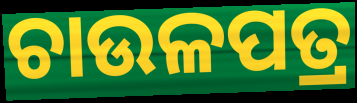
ଚାଉଳପତ୍ର